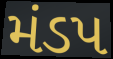
મંડપ